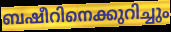
ബഷീറിനെക്കുറിച്ചും